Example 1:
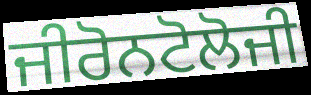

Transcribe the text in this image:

ਜੀਰੋਨਟੋਲੋਜੀ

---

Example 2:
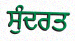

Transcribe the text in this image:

ਸੁੰਦਰਤ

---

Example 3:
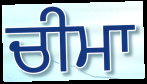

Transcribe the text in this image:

ਚੀਮਾ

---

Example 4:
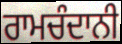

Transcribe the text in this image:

ਰਾਮਚੰਦਾਨੀ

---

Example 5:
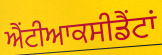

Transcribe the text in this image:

ਐਂਟੀਆਕਸੀਡੈਂਟਾਂ